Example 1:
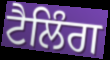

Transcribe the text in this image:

ਟੈਲਿੰਗ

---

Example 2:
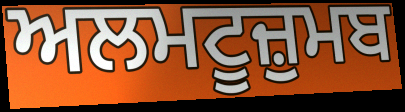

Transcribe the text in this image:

ਅਲਮਟੂਜ਼ੁਮਬ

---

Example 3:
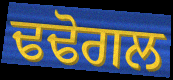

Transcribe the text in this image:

ਢਢੋਗਲ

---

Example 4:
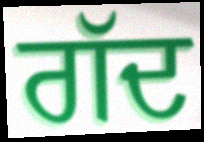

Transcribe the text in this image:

ਗੱਦ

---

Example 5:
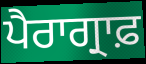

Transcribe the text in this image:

ਪੈਰਾਗ੍ਰਾਫ਼